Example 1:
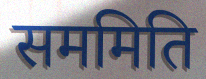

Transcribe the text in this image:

सममिति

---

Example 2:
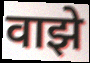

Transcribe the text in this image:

वाझे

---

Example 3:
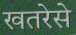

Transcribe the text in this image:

खतरेसे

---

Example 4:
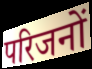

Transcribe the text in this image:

परिजनों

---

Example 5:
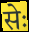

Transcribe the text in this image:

सेः